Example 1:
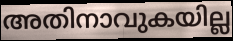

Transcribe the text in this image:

അതിനാവുകയില്ല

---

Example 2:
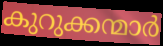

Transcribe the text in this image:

കുറുക്കന്മാർ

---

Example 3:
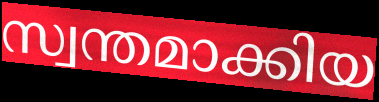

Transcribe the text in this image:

സ്വന്തമാക്കിയ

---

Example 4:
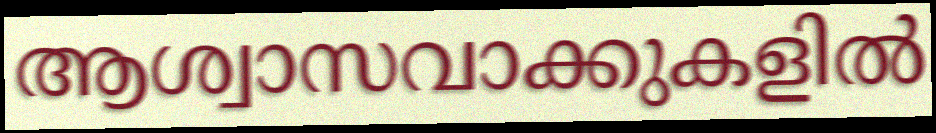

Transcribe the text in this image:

ആശ്വാസവാക്കുകളിൽ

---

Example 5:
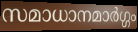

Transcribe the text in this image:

സമാധാനമാർഗ്ഗം